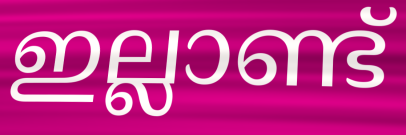
ഇല്ലാണ്ട്